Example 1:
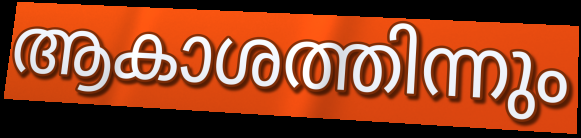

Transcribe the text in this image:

ആകാശത്തിന്നും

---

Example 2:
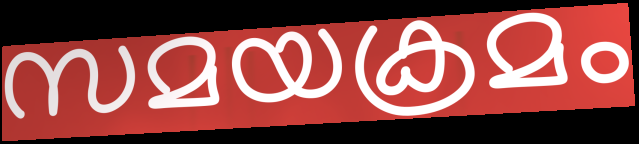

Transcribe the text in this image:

സമയക്രമം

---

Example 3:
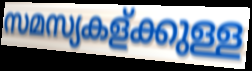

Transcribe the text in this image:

സമസ്യകള്ക്കുള്ള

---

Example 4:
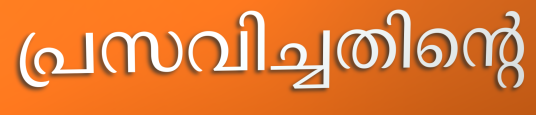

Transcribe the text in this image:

പ്രസവിച്ചതിന്റെ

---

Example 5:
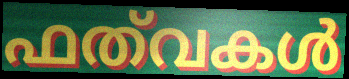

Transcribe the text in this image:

ഫത്‌വകൾ